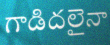
గాడిదలైనా